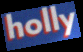
holly